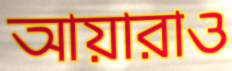
আয়ারাও